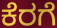
ಕೆರಗೆ